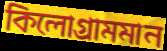
কিলোগ্ৰামমান